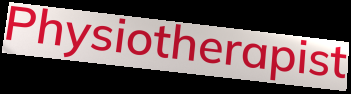
Physiotherapist